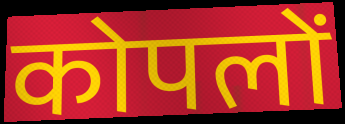
कोपलों